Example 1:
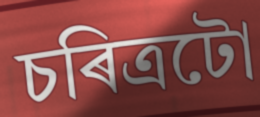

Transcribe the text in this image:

চৰিত্ৰটো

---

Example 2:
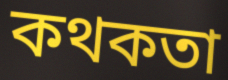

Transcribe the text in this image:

কথকতা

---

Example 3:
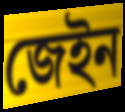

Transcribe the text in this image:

জেইন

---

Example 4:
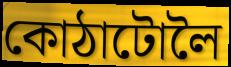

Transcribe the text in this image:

কোঠাটোলৈ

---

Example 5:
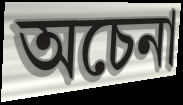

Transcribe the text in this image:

অচেনা